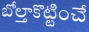
బోల్తాకొట్టించే